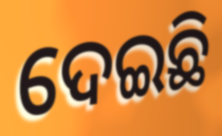
ଦେଇଛି